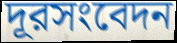
দূরসংবেদন